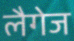
लैगेज